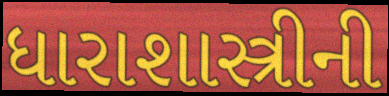
ધારાશાસ્ત્રીની